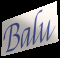
Balu